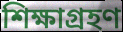
শিক্ষাগ্ৰহণ